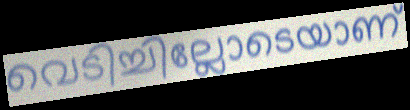
വെടിച്ചില്ലോടെയാണ്